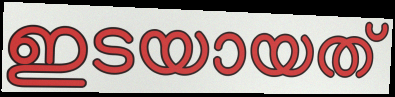
ഇടയായത്